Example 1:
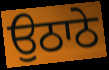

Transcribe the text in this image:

ਉਠਾਠੇ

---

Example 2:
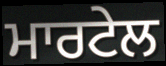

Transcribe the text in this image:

ਮਾਰਟੇਲ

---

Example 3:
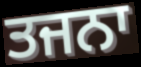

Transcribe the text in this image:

ਤਜਨਾ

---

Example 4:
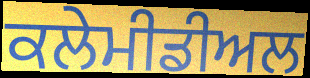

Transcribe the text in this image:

ਕਲੇਮੀਡੀਅਲ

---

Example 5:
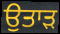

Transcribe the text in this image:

ਉਤਾਡ਼